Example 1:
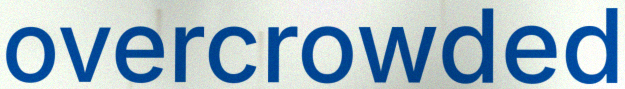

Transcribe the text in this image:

overcrowded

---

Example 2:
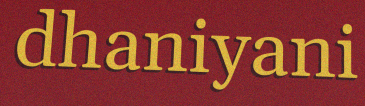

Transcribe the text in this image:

dhaniyani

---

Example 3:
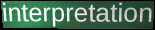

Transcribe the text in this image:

interpretation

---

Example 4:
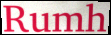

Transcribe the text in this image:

Rumh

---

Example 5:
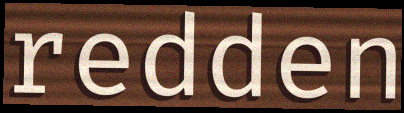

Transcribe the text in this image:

redden